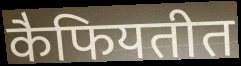
कैफियतीत